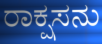
ರಾಕ್ಷಸನು